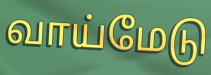
வாய்மேடு